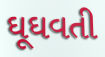
ઘૂઘવતી